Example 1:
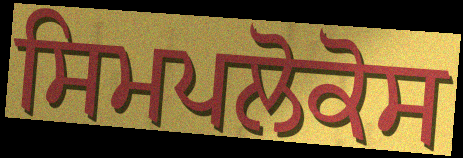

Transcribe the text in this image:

ਸਿਮਪਲੋਕੋਸ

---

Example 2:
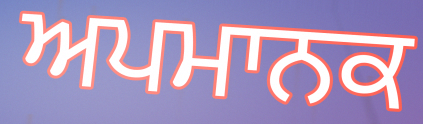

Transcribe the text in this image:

ਅਪਮਾਨਕ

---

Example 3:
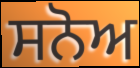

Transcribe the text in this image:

ਸਨੋਅ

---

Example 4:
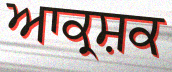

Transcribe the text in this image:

ਆਕ੍ਰਸ਼ਕ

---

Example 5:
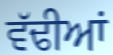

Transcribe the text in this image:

ਵੱਢੀਆਂ